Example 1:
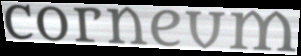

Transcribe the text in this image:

corneum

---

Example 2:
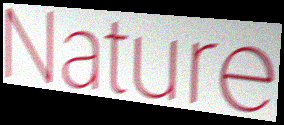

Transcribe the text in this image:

Nature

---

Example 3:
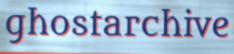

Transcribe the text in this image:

ghostarchive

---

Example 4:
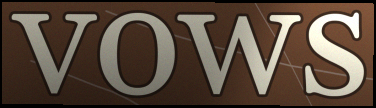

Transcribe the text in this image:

vows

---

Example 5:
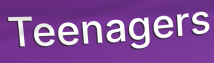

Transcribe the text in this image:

Teenagers